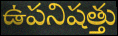
ఉపనిషత్తు